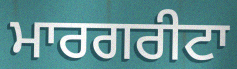
ਮਾਰਗਰੀਟਾ